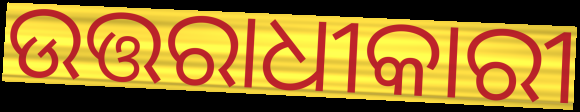
ଉତ୍ତରାଧୀକାରୀ